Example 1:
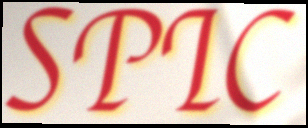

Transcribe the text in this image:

SPIC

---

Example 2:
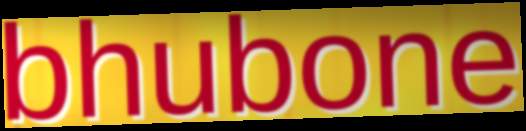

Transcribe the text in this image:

bhubone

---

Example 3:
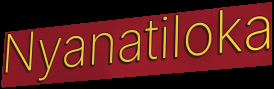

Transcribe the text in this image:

Nyanatiloka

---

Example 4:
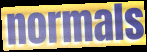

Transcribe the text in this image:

normals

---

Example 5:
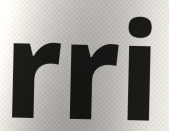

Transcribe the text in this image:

rri